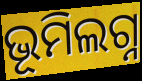
ଭୂମିଲଗ୍ନ